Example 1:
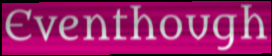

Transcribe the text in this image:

Eventhough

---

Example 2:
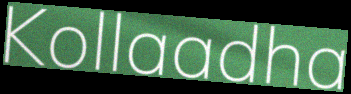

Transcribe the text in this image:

Kollaadha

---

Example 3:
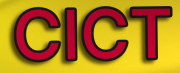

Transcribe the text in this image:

CICT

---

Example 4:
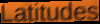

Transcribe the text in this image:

Latitudes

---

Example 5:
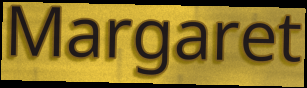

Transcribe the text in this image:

Margaret